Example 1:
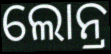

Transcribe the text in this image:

ଲୋନ୍ର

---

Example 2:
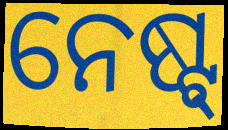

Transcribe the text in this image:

ନେଷ୍ଟ୍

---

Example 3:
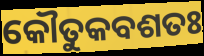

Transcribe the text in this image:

କୌତୁକବଶତଃ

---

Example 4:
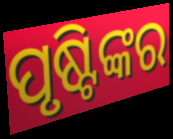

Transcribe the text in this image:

ପୃଷ୍ଟିଙ୍କର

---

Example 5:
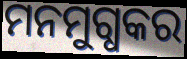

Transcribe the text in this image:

ମନମୁଗ୍ଧକର